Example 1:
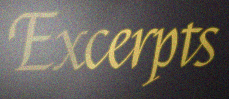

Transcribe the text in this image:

Excerpts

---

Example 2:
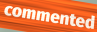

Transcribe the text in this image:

commented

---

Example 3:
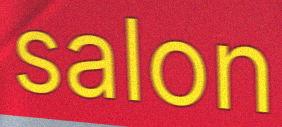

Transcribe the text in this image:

salon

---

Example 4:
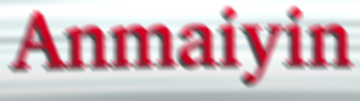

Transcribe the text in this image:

Anmaiyin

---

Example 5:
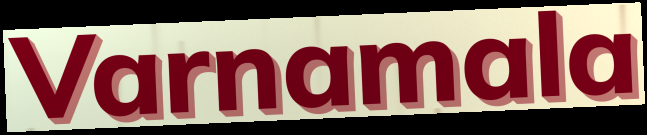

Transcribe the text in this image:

Varnamala